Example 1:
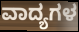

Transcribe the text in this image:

ವಾದ್ಯಗಳ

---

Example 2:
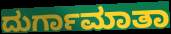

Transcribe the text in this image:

ದುರ್ಗಾಮಾತಾ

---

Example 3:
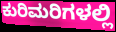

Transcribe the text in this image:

ಕುರಿಮರಿಗಳಲ್ಲಿ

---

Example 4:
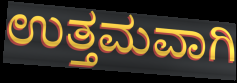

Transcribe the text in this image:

ಉತ್ತಮವಾಗಿ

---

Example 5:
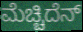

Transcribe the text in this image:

ಮೆಚ್ಚಿದೆನ್